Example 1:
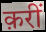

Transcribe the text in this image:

क़रीं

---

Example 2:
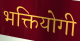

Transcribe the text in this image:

भक्तियोगी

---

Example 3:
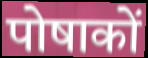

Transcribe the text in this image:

पोषाकों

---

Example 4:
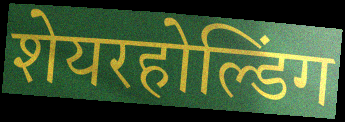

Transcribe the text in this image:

शेयरहोल्डिंग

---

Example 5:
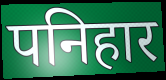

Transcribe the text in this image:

पनिहार